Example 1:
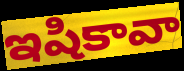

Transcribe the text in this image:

ఇషికావా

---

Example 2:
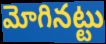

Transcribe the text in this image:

మోగినట్టు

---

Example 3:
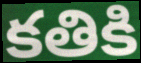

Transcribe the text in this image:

కతికి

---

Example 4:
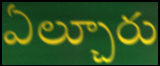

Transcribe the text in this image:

ఏల్చూరు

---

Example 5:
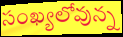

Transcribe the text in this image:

సంఖ్యలోవున్న